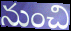
నుంచి